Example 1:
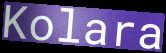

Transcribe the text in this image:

Kolara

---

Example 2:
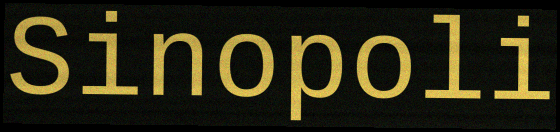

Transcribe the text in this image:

Sinopoli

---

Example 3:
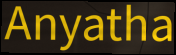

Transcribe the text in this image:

Anyatha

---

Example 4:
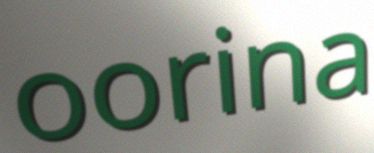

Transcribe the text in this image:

oorina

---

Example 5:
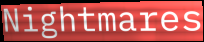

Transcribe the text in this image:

Nightmares